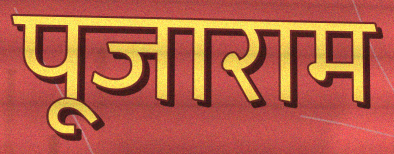
पूजाराम